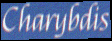
Charybdis